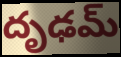
దృఢమ్